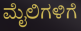
ಮೈಲಿಗಳಿಗೆ